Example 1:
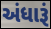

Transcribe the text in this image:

અંધારૂં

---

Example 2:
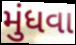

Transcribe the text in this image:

મુંધવા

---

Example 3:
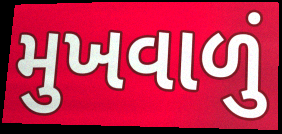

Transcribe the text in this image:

મુખવાળું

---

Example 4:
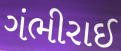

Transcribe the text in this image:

ગંભીરાઈ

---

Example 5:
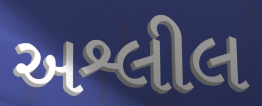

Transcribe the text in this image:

અશ્લીલ